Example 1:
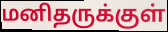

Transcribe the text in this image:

மனிதருக்குள்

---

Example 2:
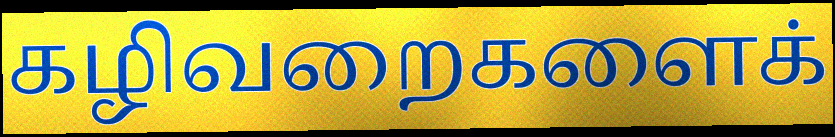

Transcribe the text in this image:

கழிவறைகளைக்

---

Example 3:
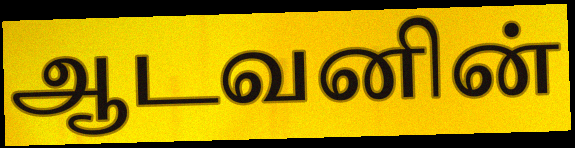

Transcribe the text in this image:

ஆடவனின்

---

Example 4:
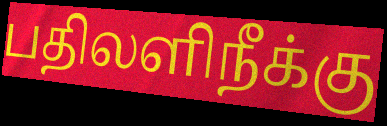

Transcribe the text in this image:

பதிலளிநீக்கு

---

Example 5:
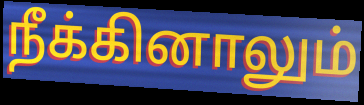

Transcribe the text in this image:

நீக்கினாலும்